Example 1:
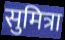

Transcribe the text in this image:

सुमित्रा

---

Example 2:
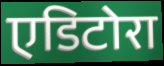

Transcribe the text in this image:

एडिटोरा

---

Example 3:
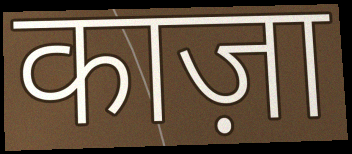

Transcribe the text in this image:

काज़ा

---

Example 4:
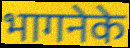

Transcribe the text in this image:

भागनेके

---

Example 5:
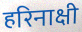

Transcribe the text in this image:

हरिनाक्षी